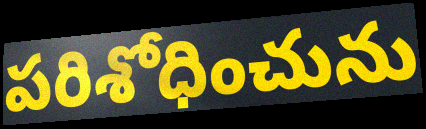
పరిశోధించును